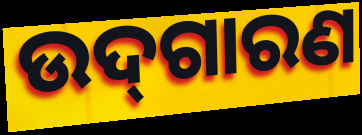
ଉଦ୍‌ଗାରଣ